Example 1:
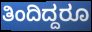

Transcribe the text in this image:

ತಿಂದಿದ್ದರೂ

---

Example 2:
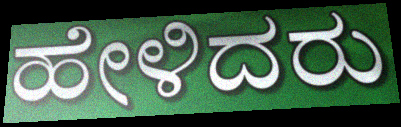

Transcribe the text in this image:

ಹೇಳಿದರು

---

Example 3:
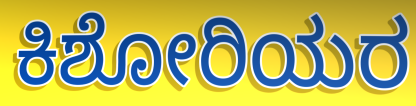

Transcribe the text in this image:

ಕಿಶೋರಿಯರ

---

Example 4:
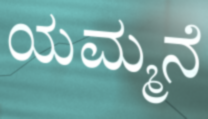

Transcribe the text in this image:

ಯಮ್ಮನೆ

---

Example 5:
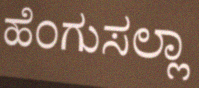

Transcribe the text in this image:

ಹೆಂಗುಸಲ್ಲಾ